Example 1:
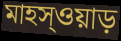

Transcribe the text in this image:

মাহস্ওয়াড়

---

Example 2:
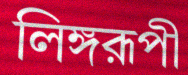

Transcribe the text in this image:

লিঙ্গরূপী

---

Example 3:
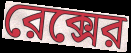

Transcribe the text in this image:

রেক্সের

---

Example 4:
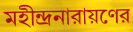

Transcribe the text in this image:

মহীন্দ্রনারায়ণের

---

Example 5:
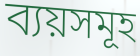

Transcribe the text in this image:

ব্যয়সমূহ